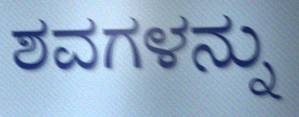
ಶವಗಳನ್ನು